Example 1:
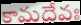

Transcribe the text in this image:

కామదేవః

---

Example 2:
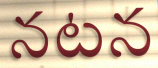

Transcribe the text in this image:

నటన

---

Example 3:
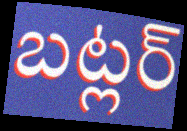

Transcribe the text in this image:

బట్లర్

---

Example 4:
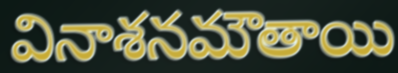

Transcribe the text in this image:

వినాశనమౌతాయి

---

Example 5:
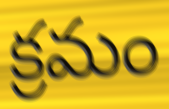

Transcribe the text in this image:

క్రమం